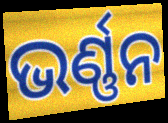
ଭର୍ଣ୍ଣନ